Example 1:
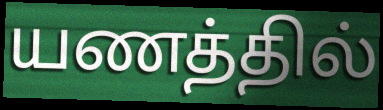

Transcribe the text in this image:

யணத்தில்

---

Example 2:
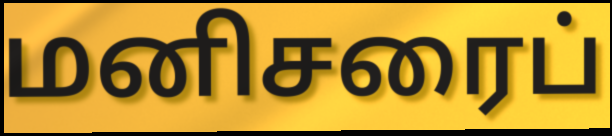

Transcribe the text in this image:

மனிசரைப்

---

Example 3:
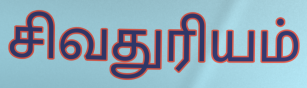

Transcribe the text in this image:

சிவதுரியம்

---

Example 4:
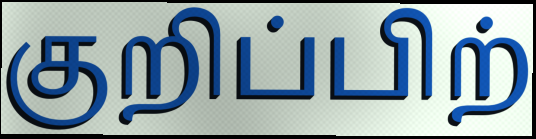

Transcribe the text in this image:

குறிப்பிற்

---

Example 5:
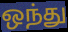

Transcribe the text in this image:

ஒந்து